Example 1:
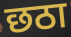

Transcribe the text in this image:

छठा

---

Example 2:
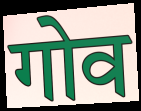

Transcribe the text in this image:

गोव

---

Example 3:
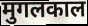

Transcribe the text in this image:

मुगलकाल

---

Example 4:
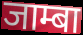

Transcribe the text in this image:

जाम्बा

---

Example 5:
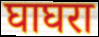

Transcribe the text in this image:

घाघरा